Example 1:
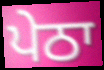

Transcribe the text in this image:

ਪੇਠਾ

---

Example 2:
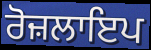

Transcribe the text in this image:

ਰੋਜ਼ਲਾਇਪ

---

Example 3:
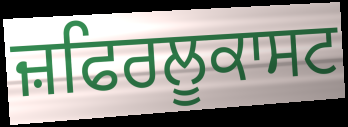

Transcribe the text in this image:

ਜ਼ਫਿਰਲੂਕਾਸਟ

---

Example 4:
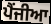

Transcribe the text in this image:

ਪੈਂਜੀਆ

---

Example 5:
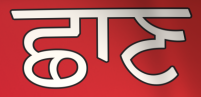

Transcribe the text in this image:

ਛਾਣ